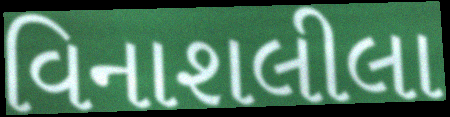
વિનાશલીલા